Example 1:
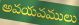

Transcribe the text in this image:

అవయవములు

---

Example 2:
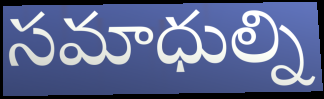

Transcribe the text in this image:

సమాధుల్ని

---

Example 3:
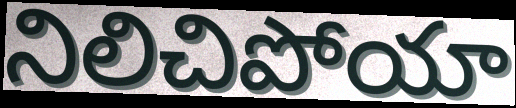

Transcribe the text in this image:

నిలిచిపోయా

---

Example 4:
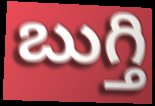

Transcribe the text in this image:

బుగ్తి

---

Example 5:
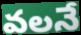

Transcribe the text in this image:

వలనే